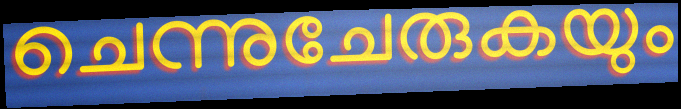
ചെന്നുചേരുകയും